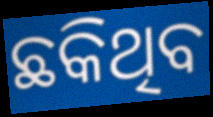
ଛକିଥିବ